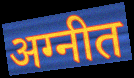
अग्नीत